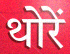
थोरें